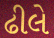
ઢીલે